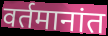
वर्तमानांत